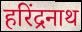
हरिंद्रनाथ